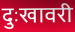
दुःखावरी